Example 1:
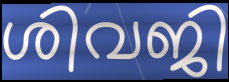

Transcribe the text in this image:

ശിവജി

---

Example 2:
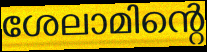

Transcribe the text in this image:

ശേലാമിന്റെ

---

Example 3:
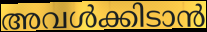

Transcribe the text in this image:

അവൾക്കിടാൻ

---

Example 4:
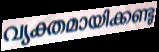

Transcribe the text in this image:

വ്യക്തമായിക്കണ്ടു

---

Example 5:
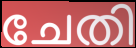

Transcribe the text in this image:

ചേതി